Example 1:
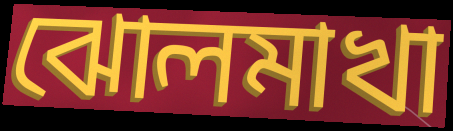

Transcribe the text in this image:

ঝোলমাখা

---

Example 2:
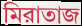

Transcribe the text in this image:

মিরাতাজ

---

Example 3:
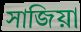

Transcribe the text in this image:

সাজিয়া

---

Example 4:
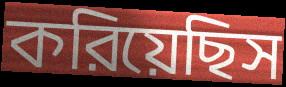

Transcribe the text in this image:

করিয়েছিস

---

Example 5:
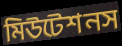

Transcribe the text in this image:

মিউটেশনস